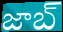
జాబ్